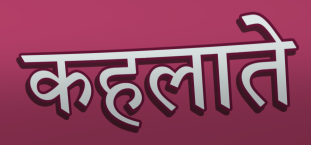
कहलाते